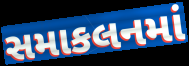
સમાકલનમાં